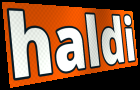
haldi